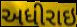
અધીરાઇ